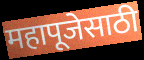
महापूजेसाठी